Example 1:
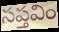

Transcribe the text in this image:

సప్తవిం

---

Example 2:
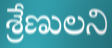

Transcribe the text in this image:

శ్రేణులని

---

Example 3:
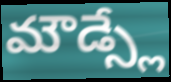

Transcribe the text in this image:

మౌడ్స్లే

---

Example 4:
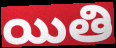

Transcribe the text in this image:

యితి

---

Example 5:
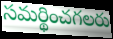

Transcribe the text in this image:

సమర్థించగలరు